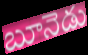
బూనెడు